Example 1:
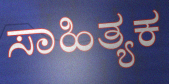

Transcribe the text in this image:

ಸಾಹಿತ್ಯಕ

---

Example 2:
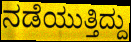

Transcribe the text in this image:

ನಡೆಯುತ್ತಿದ್ದು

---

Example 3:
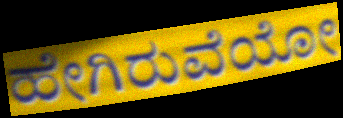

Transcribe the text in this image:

ಹೇಗಿರುವೆಯೋ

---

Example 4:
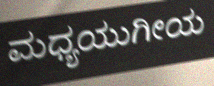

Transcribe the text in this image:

ಮಧ್ಯಯುಗೀಯ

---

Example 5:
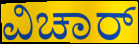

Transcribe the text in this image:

ವಿಚಾರ್